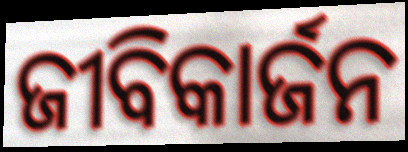
ଜୀବିକାର୍ଜନ